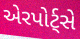
એરપોર્ટ્સે